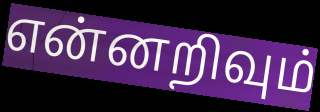
என்னறிவும்